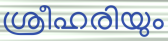
ശ്രീഹരിയും